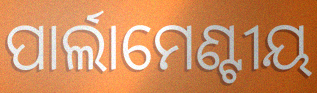
ପାର୍ଲାମେଣ୍ଟୀୟ